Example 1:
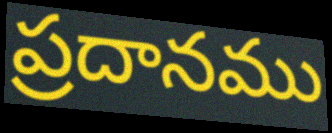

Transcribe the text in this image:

ప్రదానము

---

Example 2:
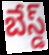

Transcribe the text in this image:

బేస్డ్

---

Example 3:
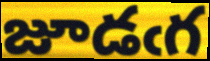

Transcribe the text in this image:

జూడఁగ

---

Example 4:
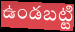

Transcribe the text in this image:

ఉండబట్టి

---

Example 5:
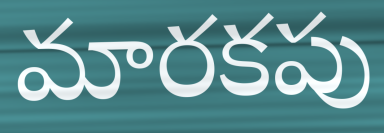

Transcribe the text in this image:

మారకపు